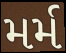
મર્મ